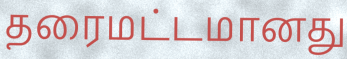
தரைமட்டமானது